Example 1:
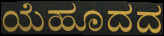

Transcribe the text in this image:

ಯೆಹೂದದ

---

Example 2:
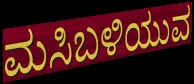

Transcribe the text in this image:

ಮಸಿಬಳಿಯುವ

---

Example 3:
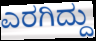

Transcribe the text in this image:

ಎರಗಿದ್ದು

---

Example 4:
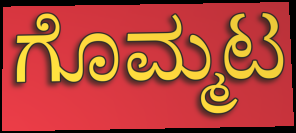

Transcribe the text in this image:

ಗೊಮ್ಮಟ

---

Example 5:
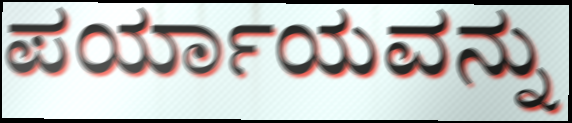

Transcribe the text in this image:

ಪರ್ಯಾಯವನ್ನು